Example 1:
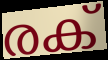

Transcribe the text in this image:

രക്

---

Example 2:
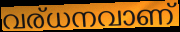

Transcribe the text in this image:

വര്ധനവാണ്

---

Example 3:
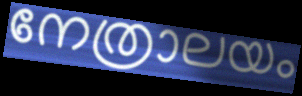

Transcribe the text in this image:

നേത്രാലയം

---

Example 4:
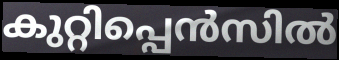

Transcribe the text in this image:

കുറ്റിപ്പെൻസിൽ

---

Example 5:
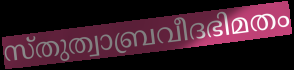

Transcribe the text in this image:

സ്തുത്വാബ്രവീദഭിമതം